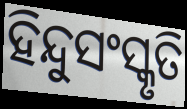
ହିନ୍ଦୁସଂସ୍କୃତି